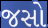
જસો